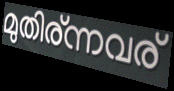
മുതിര്ന്നവര്